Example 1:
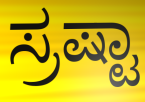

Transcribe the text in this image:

ಸ್ರಷ್ಟಾ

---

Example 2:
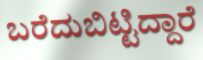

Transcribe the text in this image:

ಬರೆದುಬಿಟ್ಟಿದ್ದಾರೆ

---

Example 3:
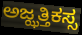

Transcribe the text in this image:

ಅಜ್ಝತ್ತಿಕಸ್ಸ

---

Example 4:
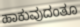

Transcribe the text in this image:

ಹಾಕುವುದಂತೂ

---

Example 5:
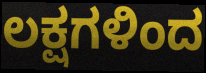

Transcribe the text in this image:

ಲಕ್ಷಗಳಿಂದ